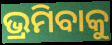
ଭ୍ରମିବାକୁ